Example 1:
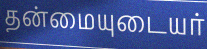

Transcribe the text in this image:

தன்மையுடையர்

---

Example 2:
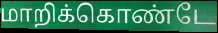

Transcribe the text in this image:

மாறிக்கொண்டே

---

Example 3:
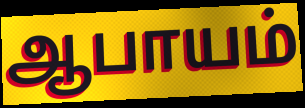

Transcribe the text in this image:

ஆபாயம்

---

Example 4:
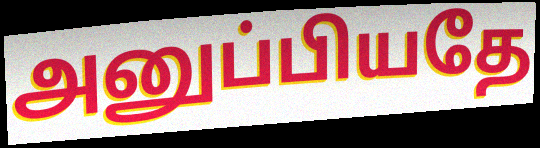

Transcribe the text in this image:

அனுப்பியதே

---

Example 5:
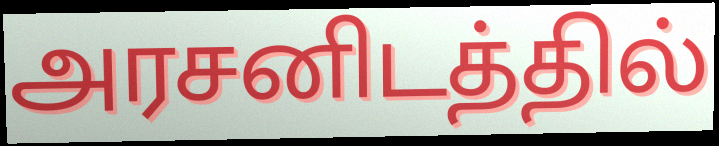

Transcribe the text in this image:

அரசனிடத்தில்